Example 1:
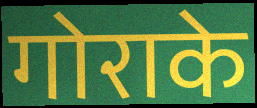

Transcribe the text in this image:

गोराके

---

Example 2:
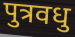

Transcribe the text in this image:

पुत्रवधु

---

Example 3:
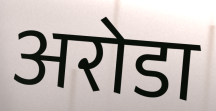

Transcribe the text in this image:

अरोडा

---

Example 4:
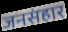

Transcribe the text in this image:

जनसंहार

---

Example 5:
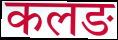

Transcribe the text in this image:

कलङ